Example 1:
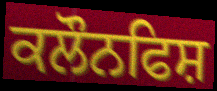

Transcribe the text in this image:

ਕਲੌਨਫਿਸ਼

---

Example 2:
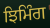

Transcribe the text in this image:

ਝਿਮਿੰਗ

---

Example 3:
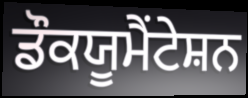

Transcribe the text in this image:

ਡੌਕਯੂਮੈਂਟੇਸ਼ਨ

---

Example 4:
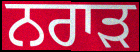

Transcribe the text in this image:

ਨਰਾੜ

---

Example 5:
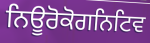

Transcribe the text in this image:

ਨਿਊਰੋਕੋਗਨਿਟਿਵ